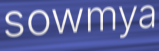
sowmya